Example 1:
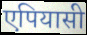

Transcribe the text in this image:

एपियासी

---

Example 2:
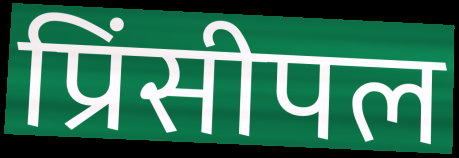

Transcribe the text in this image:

प्रिंसीपल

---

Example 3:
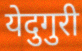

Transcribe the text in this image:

येदुगुरी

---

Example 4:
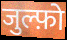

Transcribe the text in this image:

जुल्फ़ो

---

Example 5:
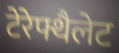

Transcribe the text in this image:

टेरेफ्थैलेट